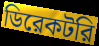
ডিরেকটরি